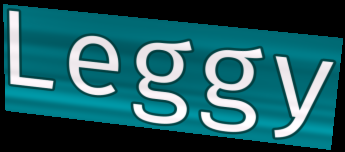
Leggy